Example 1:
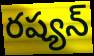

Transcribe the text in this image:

రష్యన్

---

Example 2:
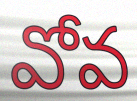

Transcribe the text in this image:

వోవ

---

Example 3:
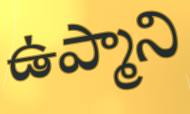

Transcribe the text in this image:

ఉప్మాని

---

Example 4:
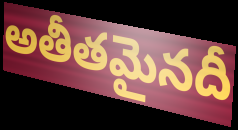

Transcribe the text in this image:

అతీతమైనదీ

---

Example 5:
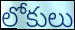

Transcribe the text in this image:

లోకులు